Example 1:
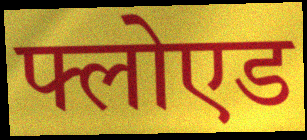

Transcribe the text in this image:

फ्लोएड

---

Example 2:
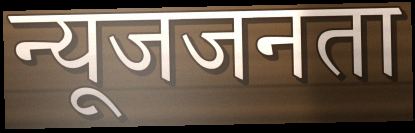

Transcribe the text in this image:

न्यूजजनता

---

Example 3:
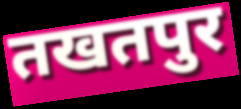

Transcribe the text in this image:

तखतपुर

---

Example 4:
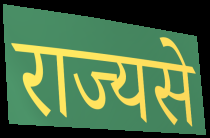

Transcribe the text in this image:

राज्यसे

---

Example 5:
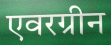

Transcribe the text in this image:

एवरग्रीन